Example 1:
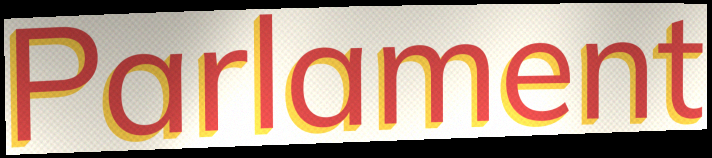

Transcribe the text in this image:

Parlament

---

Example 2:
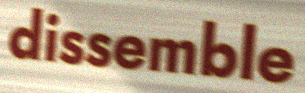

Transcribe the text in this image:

dissemble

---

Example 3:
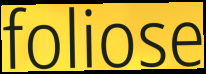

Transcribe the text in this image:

foliose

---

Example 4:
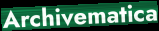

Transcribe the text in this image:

Archivematica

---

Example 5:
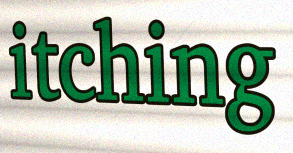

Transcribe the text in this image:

itching